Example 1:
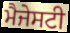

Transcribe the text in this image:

ਮੈਜੇਸਟੀ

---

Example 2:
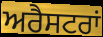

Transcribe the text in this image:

ਅਰੈਸਟਰਾਂ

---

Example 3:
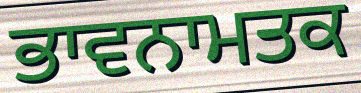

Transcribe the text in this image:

ਭਾਵਨਾਮਤਕ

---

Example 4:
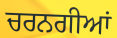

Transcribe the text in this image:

ਚਰਨਗੀਆਂ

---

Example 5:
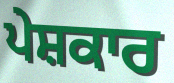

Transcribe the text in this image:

ਪੇਸ਼ਕਾਰ